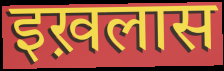
इख़लास